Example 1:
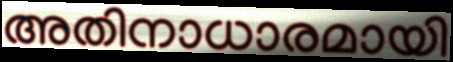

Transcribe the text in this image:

അതിനാധാരമായി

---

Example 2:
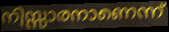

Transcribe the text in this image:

നിസ്സാരനാണെന്ന്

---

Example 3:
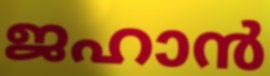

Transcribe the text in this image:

ജഹാൻ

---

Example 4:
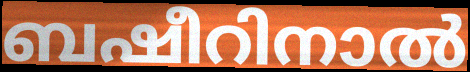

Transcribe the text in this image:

ബഷീറിനാൽ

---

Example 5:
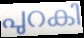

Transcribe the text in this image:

പുറകി